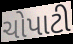
ચોપાટી